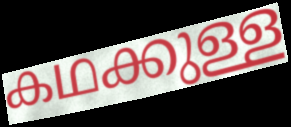
കഥക്കുള്ള